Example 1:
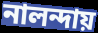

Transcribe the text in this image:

নালন্দায়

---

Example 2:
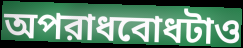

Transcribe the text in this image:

অপরাধবোধটাও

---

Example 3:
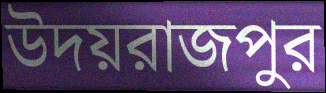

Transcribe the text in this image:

উদয়রাজপুর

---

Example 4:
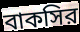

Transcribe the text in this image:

বাকসির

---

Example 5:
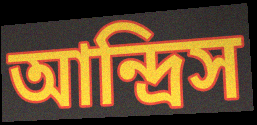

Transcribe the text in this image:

আন্দ্রিস